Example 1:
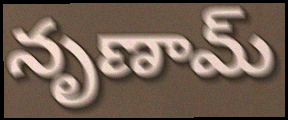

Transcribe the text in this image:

నృణామ్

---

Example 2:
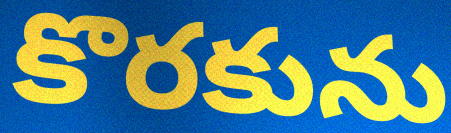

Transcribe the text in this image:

కొరకును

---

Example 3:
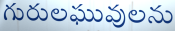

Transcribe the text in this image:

గురులఘువులను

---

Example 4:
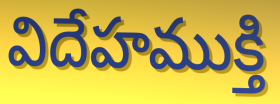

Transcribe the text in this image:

విదేహముక్తి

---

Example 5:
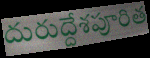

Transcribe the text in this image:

దురుద్దేశపూరిత